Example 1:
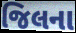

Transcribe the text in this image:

જિલના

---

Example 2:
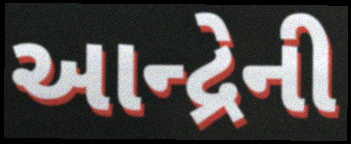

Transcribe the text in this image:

આન્દ્રેની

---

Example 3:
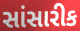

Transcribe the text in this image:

સાંસારીક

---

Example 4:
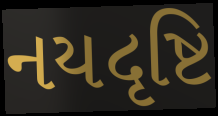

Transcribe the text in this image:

નયદૃષ્ટિ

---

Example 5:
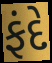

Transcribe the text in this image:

ફંદે